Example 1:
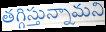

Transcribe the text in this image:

తగ్గిస్తున్నామని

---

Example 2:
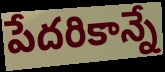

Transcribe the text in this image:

పేదరికాన్నే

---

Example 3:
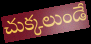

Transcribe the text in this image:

చుక్కలుండే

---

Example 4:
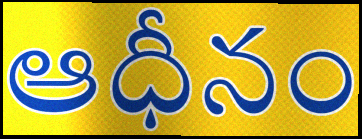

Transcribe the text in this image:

ఆధీనం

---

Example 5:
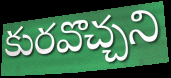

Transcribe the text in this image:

కురవొచ్చని